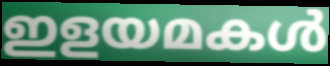
ഇളയമകൾ